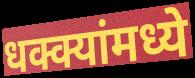
धक्क्यांमध्ये